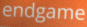
endgame